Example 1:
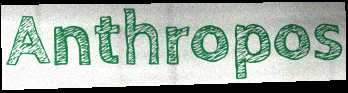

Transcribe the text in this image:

Anthropos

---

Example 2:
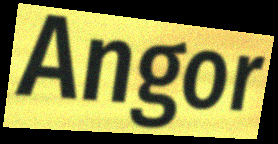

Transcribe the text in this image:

Angor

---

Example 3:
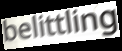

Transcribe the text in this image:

belittling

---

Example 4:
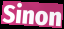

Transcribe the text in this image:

Sinon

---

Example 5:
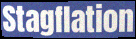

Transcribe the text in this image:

Stagflation